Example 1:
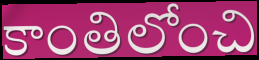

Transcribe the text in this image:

కాంతిలోంచి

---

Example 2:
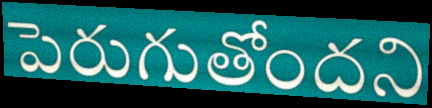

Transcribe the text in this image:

పెరుగుతోందని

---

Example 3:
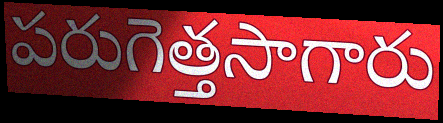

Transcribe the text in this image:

పరుగెత్తసాగారు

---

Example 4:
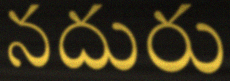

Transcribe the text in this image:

నదురు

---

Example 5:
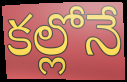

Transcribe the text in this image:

కల్లోనే